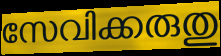
സേവിക്കരുതു